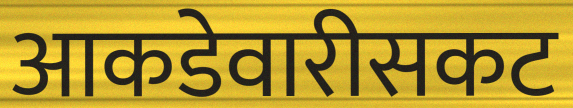
आकडेवारीसकट